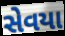
સેવયા